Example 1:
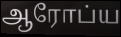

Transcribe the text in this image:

ஆரோப்ய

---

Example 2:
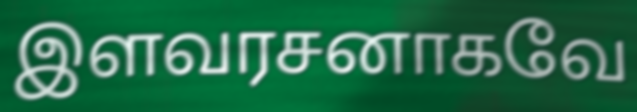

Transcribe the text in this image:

இளவரசனாகவே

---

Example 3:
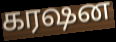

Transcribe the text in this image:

கரஷன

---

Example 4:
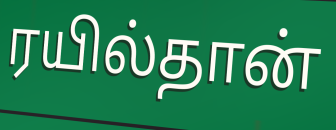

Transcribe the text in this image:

ரயில்தான்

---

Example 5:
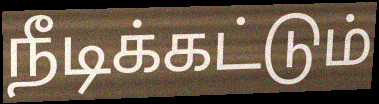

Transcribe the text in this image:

நீடிக்கட்டும்